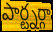
పార్ట్నర్గా